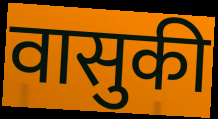
वासुकी